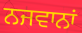
ਨਜਵਾਨਾਂ